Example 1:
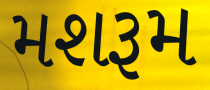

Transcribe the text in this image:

મશરૂમ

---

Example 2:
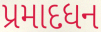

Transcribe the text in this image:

પ્રમાદધન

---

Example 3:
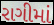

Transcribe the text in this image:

રાગીમાં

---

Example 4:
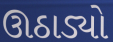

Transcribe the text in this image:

ઊઠાડ્યો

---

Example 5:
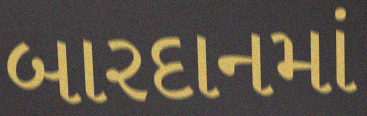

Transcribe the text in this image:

બારદાનમાં